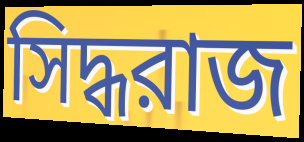
সিদ্ধরাজ